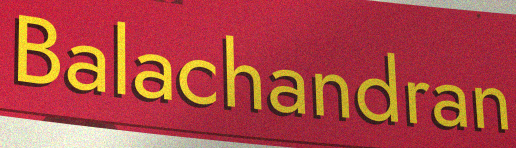
Balachandran